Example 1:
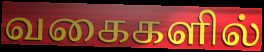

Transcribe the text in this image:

வகைகளில்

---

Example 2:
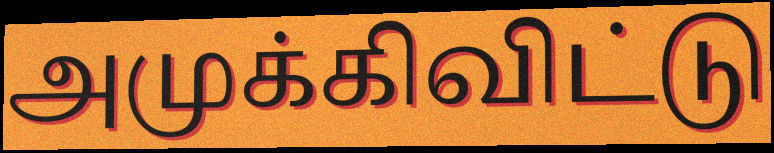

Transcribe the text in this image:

அமுக்கிவிட்டு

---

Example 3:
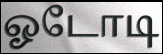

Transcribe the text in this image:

ஓடோடி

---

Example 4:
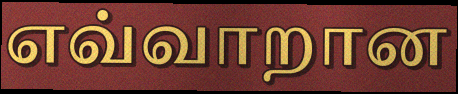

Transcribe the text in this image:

எவ்வாறான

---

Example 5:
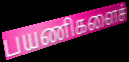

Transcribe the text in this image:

பயணிகளைச்